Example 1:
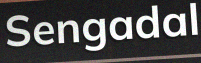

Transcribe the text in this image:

Sengadal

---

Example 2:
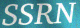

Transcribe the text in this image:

SSRN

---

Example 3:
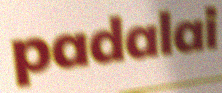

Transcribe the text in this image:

padalai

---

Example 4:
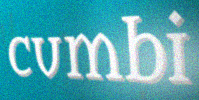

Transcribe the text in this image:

cumbi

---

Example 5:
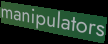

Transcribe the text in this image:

manipulators